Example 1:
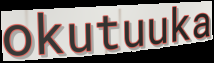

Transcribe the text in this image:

okutuuka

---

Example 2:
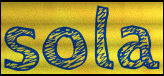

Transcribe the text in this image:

sola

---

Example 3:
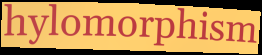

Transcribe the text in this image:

hylomorphism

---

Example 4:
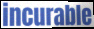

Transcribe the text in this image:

incurable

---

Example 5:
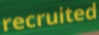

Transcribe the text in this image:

recruited